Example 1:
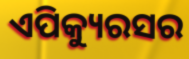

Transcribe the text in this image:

ଏପିକ୍ୟୁରସର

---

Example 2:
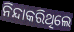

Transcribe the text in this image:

ନିନ୍ଦାକରିଥିଲେ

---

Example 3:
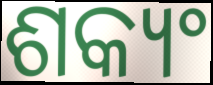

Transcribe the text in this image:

ଶକ୍ୟଂ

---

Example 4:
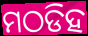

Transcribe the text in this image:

ମଠଡିହ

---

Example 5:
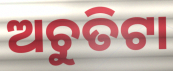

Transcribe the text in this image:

ଅଚୁତିଟା